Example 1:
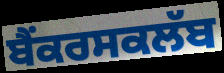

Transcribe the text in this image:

ਬੈਂਕਰਸਕਲੱਬ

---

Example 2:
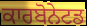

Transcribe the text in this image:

ਕਾਰਬੋਨੇਟਡ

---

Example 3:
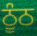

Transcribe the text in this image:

ਠੂੰਠ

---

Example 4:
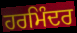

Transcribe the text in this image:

ਹਰਮਿੰਦਰ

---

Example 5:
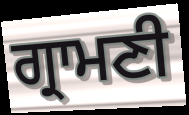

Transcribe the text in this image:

ਗ੍ਰਾਮਣੀ